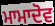
ਮਾਮਾਦੋਵ